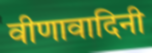
वीणावादिनी